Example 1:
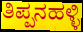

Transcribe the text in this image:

ತಿಪ್ಪನಹಳ್ಳಿ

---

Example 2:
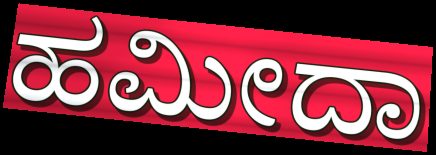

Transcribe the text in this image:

ಹಮೀದಾ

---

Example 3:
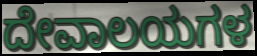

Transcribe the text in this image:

ದೇವಾಲಯಗಳ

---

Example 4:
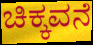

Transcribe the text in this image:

ಚಿಕ್ಕವನೆ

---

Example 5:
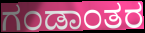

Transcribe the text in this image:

ಗಂಡಾಂತರ